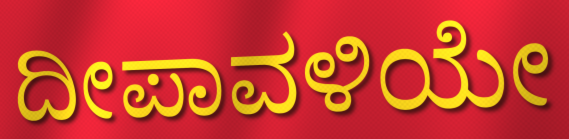
ದೀಪಾವಳಿಯೇ